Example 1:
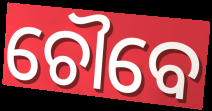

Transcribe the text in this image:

ଚୌବେ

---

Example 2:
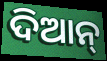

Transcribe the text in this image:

ଦିଆନ୍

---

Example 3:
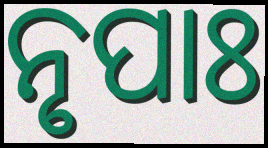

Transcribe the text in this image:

ନୃପାଃ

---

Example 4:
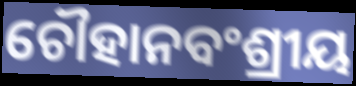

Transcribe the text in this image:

ଚୌହାନବଂଶ୍ରୀୟ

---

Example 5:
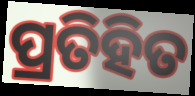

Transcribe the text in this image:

ପ୍ରତିହିତ